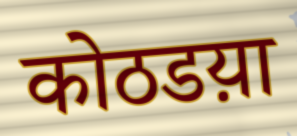
कोठडय़ा